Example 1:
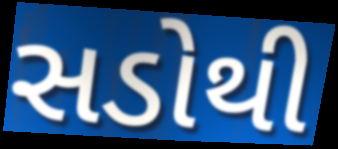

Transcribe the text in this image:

સડોથી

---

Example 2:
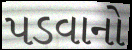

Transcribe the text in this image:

પડવાનો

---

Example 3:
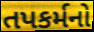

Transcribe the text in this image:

તપકર્મનો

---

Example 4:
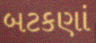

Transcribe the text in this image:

બટકણાં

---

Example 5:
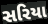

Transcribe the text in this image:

સરિયા